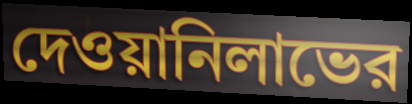
দেওয়ানিলাভের